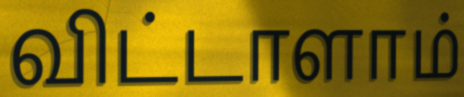
விட்டாளாம்